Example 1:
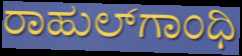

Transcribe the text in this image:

ರಾಹುಲ್‌ಗಾಂಧಿ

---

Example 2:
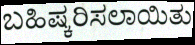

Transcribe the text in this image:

ಬಹಿಷ್ಕರಿಸಲಾಯಿತು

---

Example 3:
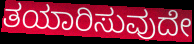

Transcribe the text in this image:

ತಯಾರಿಸುವುದೇ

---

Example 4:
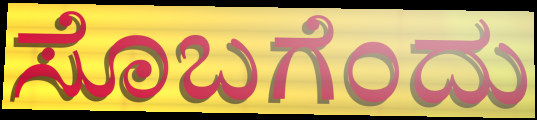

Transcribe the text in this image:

ಸೊಬಗೆಂದು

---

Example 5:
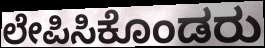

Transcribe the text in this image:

ಲೇಪಿಸಿಕೊಂಡರು